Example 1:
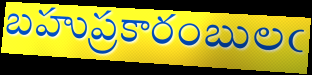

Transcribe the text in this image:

బహుప్రకారంబులఁ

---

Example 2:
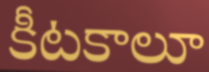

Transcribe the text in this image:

కీటకాలూ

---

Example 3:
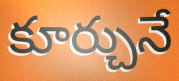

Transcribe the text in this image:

కూర్చునే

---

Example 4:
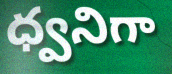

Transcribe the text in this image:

ధ్వనిగా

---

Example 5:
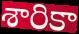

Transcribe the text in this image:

శారికా